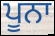
ਪੂਨਾ